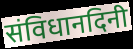
संविधानदिनी